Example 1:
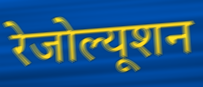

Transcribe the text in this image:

रेजोल्यूशन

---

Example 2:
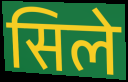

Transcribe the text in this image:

सिले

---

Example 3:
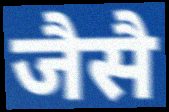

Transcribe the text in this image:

जैसै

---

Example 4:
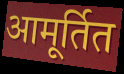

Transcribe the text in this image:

आमूर्तित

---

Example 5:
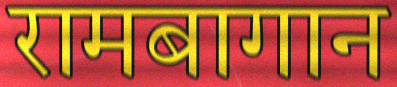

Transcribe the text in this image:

रामबागान